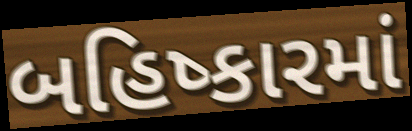
બહિષ્કારમાં